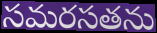
సమరసతను